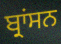
ਬ੍ਰਾਂਸਨ